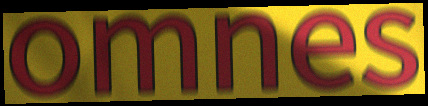
omnes